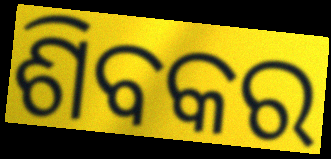
ଶିବକର